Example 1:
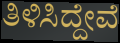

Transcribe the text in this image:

ತಿಳಿಸಿದ್ದೇವೆ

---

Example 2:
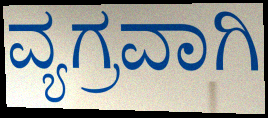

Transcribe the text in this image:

ವ್ಯಗ್ರವಾಗಿ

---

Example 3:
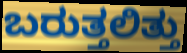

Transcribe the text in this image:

ಬರುತ್ತಲಿತ್ತು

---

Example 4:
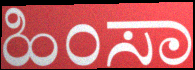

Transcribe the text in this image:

ಹಿಂಸಾ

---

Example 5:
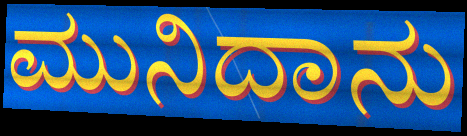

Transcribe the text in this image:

ಮುನಿದಾನು